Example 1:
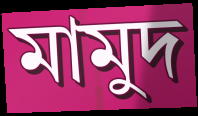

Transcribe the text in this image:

মামুদ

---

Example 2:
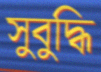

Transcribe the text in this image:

সুবুদ্ধি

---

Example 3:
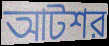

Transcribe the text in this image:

আটশর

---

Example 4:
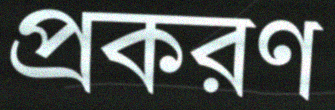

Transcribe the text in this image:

প্রকরণ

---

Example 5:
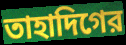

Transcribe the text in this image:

তাহাদিগের